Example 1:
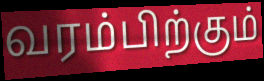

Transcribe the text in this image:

வரம்பிற்கும்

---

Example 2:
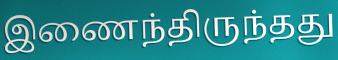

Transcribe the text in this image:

இணைந்திருந்தது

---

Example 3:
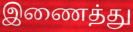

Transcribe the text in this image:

இணைத்து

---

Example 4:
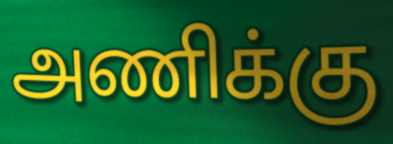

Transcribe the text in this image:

அணிக்கு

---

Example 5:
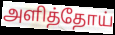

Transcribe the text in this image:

அளித்தோய்